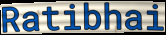
Ratibhai